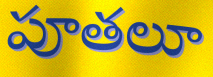
పూతలూ